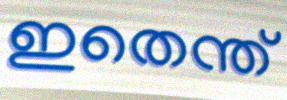
ഇതെന്ത്